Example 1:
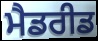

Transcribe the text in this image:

ਮੈਡਰੀਡ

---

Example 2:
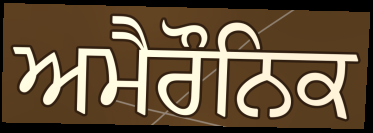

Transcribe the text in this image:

ਅਮੈਰੌਨਿਕ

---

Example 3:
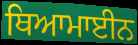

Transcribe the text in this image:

ਥਿਆਮਾਈਨ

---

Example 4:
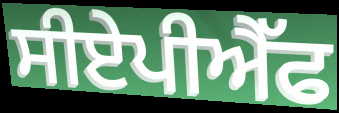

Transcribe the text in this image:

ਸੀਏਪੀਐੱਫ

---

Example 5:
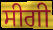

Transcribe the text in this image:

ਸੀਗੀ